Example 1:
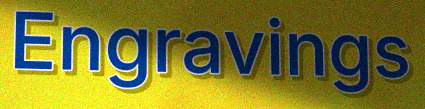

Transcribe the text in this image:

Engravings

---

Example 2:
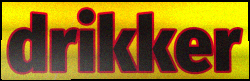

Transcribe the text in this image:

drikker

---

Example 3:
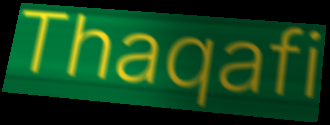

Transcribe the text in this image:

Thaqafi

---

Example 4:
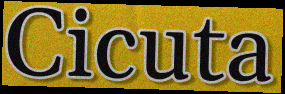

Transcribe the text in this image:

Cicuta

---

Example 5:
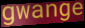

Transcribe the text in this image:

gwange